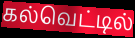
கல்வெட்டில்